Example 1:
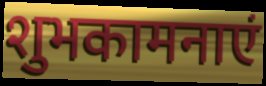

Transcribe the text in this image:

शुभकामनाएं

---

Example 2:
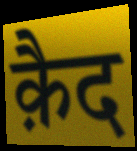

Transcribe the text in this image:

क़ैद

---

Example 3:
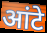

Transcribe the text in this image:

आंटे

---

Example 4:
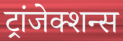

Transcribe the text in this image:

ट्रांजेक्शन्स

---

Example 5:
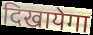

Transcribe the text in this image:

दिखायेगा